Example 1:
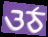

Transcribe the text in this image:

ওঠ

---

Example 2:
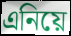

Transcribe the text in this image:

এনিয়ে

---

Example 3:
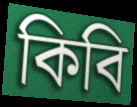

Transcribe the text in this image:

কিবি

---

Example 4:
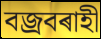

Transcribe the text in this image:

বজ্ৰবৰাহী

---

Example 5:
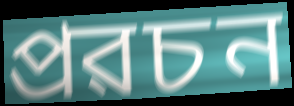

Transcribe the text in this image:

প্ৰৱচন